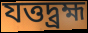
যত্তদ্ব্রহ্ম